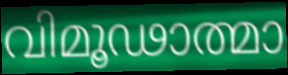
വിമൂഢാത്മാ